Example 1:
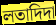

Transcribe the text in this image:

লতাদিদা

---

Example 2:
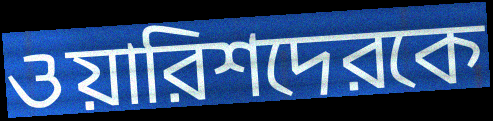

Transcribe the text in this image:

ওয়ারিশদেরকে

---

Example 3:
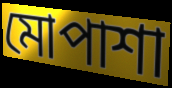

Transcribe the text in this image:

মোপাশা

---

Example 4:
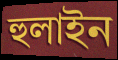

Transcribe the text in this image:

হুলাইন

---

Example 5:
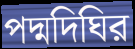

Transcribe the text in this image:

পদ্মদিঘির